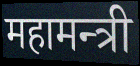
महामन्त्री